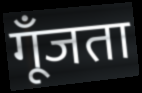
गूँजता